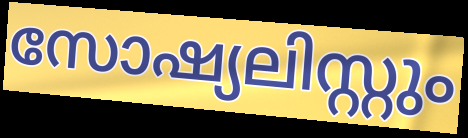
സോഷ്യലിസ്റ്റും